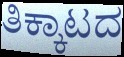
ತಿಕ್ಕಾಟದ